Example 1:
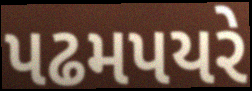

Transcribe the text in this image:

પઢમપયરે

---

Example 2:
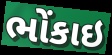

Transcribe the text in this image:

ભોંકાઇ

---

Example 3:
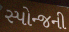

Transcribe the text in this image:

સ્પોન્જની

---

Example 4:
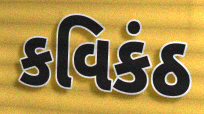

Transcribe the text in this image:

કવિકંઠ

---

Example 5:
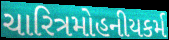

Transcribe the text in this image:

ચારિત્રમોહનીયકર્મ